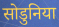
सोडुनिया